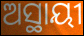
ଅସ୍ଥାୟୀ